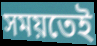
সময়তেই